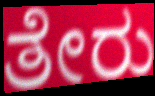
ತೇರು